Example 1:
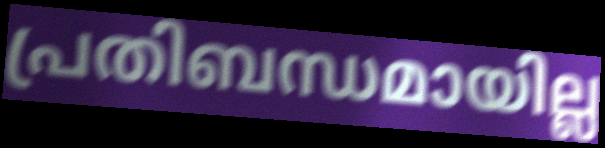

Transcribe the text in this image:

പ്രതിബന്ധമായില്ല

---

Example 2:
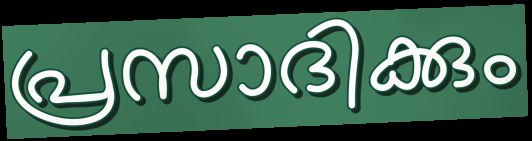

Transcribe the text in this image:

പ്രസാദിക്കും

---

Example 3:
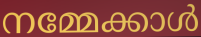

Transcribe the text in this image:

നമ്മേക്കാൾ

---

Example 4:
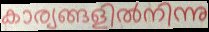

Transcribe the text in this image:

കാര്യങ്ങളിൽനിന്നു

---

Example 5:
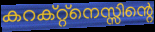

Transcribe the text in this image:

കറക്റ്റ്നെസ്സിന്റെ